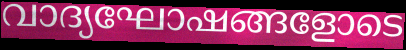
വാദ്യഘോഷങ്ങളോടെ